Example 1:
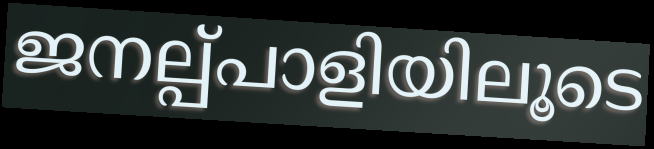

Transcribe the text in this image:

ജനല്പ്പാളിയിലൂടെ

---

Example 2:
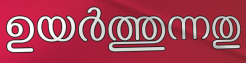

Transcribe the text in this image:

ഉയർത്തുന്നതു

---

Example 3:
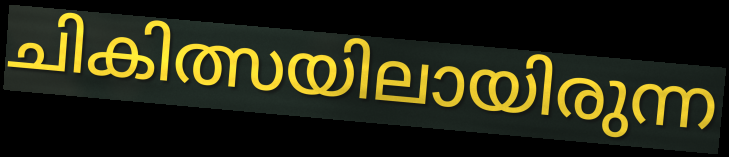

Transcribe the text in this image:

ചികിത്സയിലായിരുന്ന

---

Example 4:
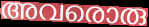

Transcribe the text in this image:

അവരൊരു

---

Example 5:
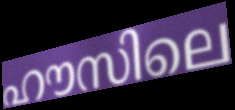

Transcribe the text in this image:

ഹൗസിലെ